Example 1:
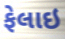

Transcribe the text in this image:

ફેલાઇ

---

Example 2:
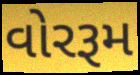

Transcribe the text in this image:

વોરરૂમ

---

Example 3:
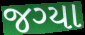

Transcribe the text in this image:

જગ્યા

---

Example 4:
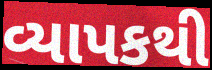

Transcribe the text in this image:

વ્યાપકથી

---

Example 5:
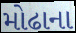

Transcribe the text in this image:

મોઢાના